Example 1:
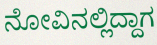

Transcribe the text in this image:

ನೋವಿನಲ್ಲಿದ್ದಾಗ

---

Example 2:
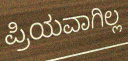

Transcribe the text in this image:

ಪ್ರಿಯವಾಗಿಲ್ಲ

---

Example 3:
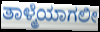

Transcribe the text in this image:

ತಾಳ್ಮೆಯಾಗಲೀ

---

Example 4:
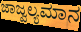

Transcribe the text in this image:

ಜಾಜ್ವಲ್ಯಮಾನ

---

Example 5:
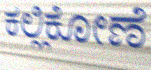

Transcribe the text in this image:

ಕಲ್ಲಿಕೋಣೆ